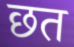
छत